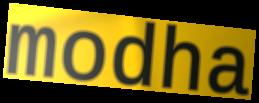
modha